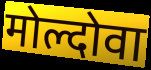
मोल्दोवा